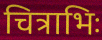
चित्राभिः